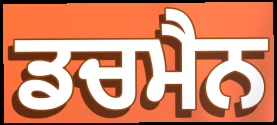
ਡਚਮੈਨ